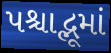
પશ્ચાદ્ભૂમાં